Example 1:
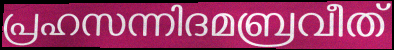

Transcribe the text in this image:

പ്രഹസന്നിദമബ്രവീത്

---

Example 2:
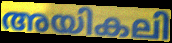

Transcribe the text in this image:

അയികലി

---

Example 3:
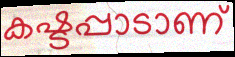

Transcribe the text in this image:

കഷ്ടപ്പാടാണ്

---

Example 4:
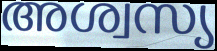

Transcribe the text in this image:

അശ്വസ്യ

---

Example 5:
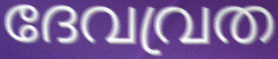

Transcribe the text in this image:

ദേവവ്രത